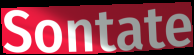
Sontate